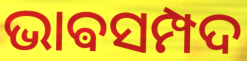
ଭାଵସମ୍ପଦ